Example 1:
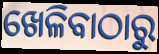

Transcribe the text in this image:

ଖେଳିବାଠାରୁ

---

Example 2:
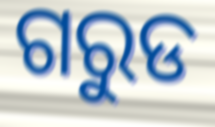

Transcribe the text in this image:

ଗରୁଡ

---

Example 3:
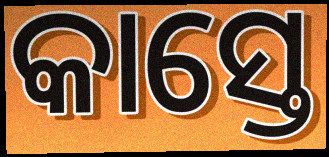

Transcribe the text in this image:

କାସ୍ତେ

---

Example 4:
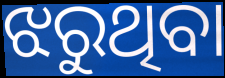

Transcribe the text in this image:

ଝରୁଥିବା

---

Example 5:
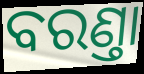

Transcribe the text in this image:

ବରଣ୍ତା